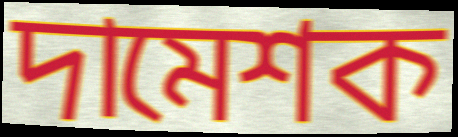
দামেশক